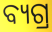
ବ୍ୟଗ୍ର